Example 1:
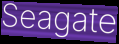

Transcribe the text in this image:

Seagate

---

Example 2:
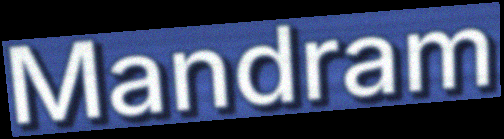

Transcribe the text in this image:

Mandram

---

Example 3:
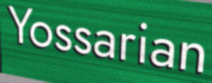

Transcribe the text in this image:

Yossarian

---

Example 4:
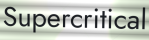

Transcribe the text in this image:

Supercritical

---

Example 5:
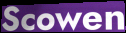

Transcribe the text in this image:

Scowen